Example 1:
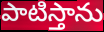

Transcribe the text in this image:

పాటిస్తాను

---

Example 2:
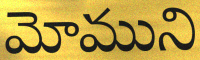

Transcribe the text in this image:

మోముని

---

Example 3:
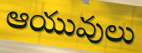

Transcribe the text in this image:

ఆయువులు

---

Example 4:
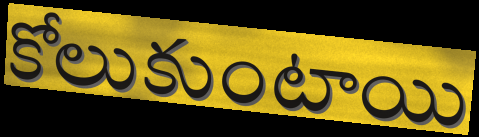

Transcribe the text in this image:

కోలుకుంటాయి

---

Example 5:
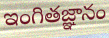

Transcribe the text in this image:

ఇంగితజ్ఞానం